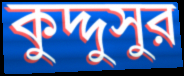
কুদ্দুসুর